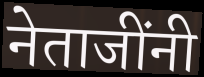
नेताजींनी